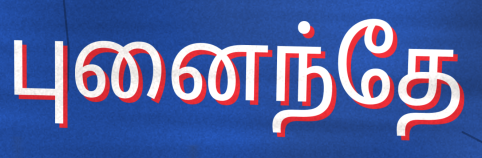
புனைந்தே